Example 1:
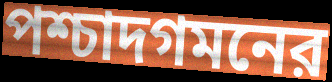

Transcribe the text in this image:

পশ্চাদগমনের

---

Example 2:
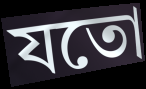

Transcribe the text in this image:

যতো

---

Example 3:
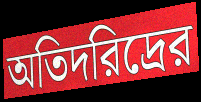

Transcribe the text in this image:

অতিদরিদ্রের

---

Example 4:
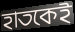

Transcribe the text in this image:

হাতকেই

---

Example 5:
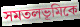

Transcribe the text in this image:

সমতলভূমিকে